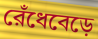
রেঁধেবেড়ে